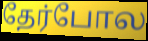
தேர்போல